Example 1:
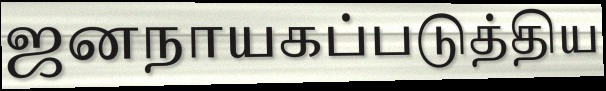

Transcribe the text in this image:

ஜனநாயகப்படுத்திய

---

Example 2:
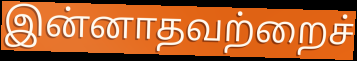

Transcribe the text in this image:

இன்னாதவற்றைச்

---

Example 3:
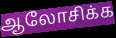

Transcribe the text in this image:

ஆலோசிக்க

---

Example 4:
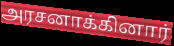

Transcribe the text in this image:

அரசனாக்கினார்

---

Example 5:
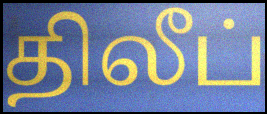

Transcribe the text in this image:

திலீப்